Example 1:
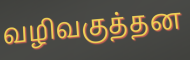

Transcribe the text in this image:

வழிவகுத்தன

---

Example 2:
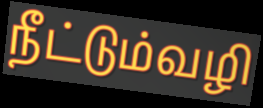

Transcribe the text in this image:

நீட்டும்வழி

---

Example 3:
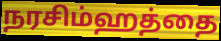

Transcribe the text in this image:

நரசிம்ஹத்தை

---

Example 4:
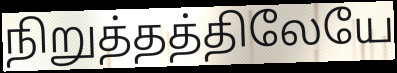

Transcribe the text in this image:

நிறுத்தத்திலேயே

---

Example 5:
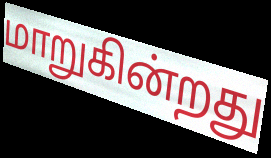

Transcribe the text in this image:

மாறுகின்றது